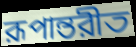
রূপান্তরীত